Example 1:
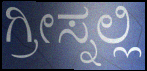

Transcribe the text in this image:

ಗ್ರೀಸ್ನಲ್ಲಿ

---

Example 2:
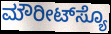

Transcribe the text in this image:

ಮೌರೀಟ್‌ಸ್ಯೊ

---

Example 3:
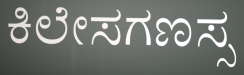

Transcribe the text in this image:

ಕಿಲೇಸಗಣಸ್ಸ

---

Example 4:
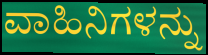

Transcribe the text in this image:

ವಾಹಿನಿಗಳನ್ನು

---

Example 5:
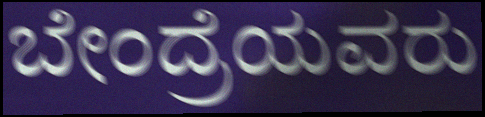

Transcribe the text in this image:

ಬೇಂದ್ರೆಯವರು